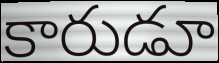
కారుడూ